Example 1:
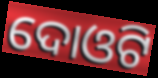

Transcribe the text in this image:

ଦୋଓଟି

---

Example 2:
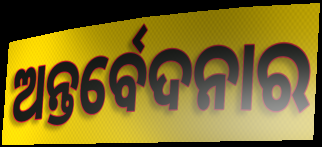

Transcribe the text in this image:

ଅନ୍ତର୍ବେଦନାର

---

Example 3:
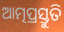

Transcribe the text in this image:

ଆତ୍ମପ୍ରସ୍ତୁତି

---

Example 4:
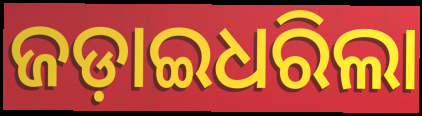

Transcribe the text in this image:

ଜଡ଼ାଇଧରିଲା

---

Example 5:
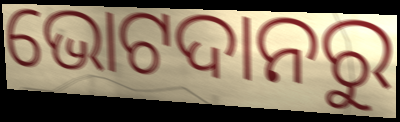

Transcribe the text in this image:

ଭୋଟଦାନରୁ